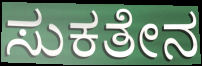
ಸುಕತೇನ